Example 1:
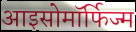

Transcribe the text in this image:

आइसोमॉर्फिज्म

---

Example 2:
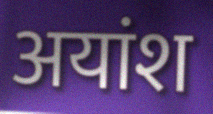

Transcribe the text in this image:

अयांश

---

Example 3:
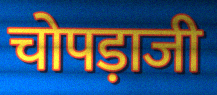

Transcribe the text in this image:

चोपड़ाजी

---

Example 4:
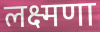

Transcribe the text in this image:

लक्ष्मणा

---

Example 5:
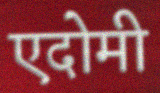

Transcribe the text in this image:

एदोमी